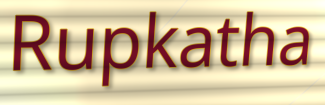
Rupkatha